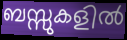
ബസ്സുകളിൽ